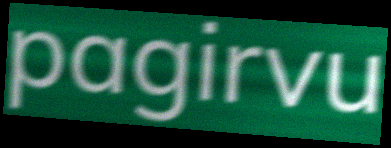
pagirvu